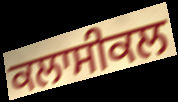
ਕਲਾਸੀਕਲ